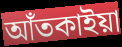
আঁতকাইয়া